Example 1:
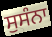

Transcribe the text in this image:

ਸੁਸੰਨਾ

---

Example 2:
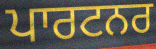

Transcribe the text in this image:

ਪਾਰਟਨਰ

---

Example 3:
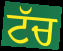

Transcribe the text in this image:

ਟੱਚ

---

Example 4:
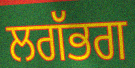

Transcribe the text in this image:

ਲਗੱਭਗ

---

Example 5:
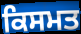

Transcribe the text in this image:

ਕਿਸਮਤ